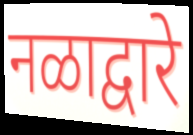
नळाद्वारे